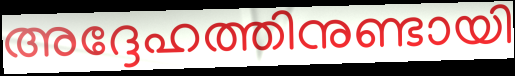
അദ്ദേഹത്തിനുണ്ടായി